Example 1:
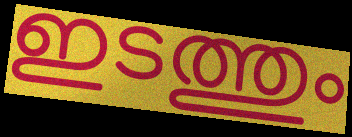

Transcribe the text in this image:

ഇടത്തും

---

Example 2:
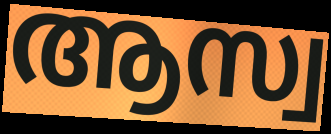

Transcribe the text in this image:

ആസ്വ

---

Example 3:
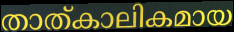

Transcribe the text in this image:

താത്കാലികമായ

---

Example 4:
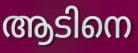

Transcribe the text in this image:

ആടിനെ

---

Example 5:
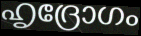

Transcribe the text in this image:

ഹൃദ്രോഗം